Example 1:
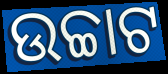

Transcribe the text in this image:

ଉଚ୍ଚାଟ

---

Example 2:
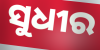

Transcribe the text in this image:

ସୁଧୀର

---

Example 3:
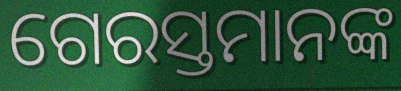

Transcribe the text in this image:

ଗେରସ୍ତମାନଙ୍କ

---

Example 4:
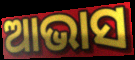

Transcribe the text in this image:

ଆଭାସ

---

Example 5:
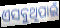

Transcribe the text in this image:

ଏସବୁଥିପାଇଁ